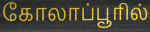
கோலாப்பூரில்